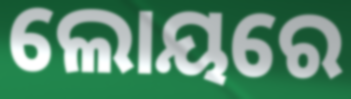
ଲୋୟରେ